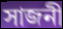
সাজনী